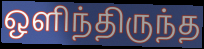
ஒளிந்திருந்த